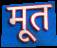
मूत